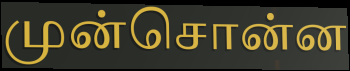
முன்சொன்ன